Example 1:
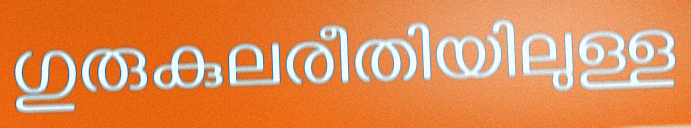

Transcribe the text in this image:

ഗുരുകുലരീതിയിലുള്ള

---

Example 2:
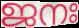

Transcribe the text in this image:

ജനഃ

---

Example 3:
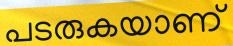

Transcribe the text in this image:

പടരുകയാണ്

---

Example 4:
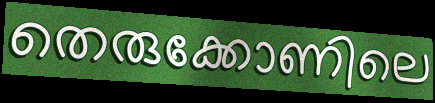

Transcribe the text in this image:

തെരുക്കോണിലെ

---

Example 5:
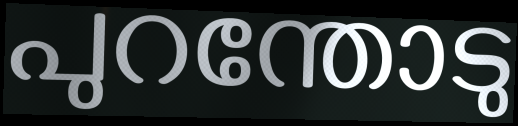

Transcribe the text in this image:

പുറന്തോടു